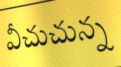
వీచుచున్న